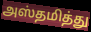
அஸ்தமித்து